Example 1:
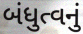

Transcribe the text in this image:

બંધુત્વનું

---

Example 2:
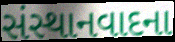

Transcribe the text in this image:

સંસ્થાનવાદના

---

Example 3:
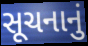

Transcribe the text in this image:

સૂચનાનું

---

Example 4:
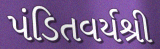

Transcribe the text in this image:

પંડિતવર્યશ્રી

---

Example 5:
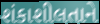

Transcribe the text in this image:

શંકાશીલતાને